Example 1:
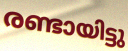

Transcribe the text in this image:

രണ്ടായിട്ടു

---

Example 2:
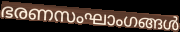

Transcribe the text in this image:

ഭരണസംഘാംഗങ്ങൾ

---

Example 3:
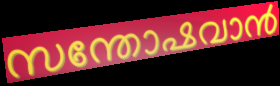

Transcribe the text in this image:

സന്തോഷവാൻ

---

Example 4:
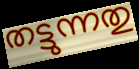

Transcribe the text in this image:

തട്ടുന്നതു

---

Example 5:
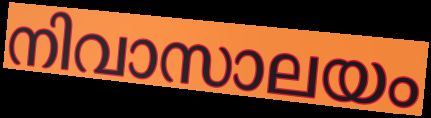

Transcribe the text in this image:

നിവാസാലയം